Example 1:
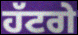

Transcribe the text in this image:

ਹੱਟਗੇ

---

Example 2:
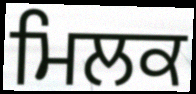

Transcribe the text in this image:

ਮਿਲਕ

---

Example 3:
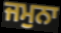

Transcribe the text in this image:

ਜਮੁਨਾ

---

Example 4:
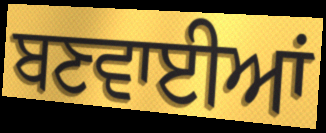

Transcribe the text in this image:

ਬਣਵਾਈਆਂ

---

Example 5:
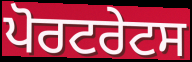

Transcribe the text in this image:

ਪੋਰਟਰੇਟਸ